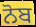
ਨੋਬ